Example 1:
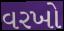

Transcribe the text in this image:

વરખો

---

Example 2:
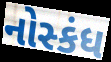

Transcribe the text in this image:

નોસ્કંધ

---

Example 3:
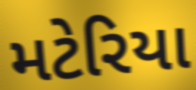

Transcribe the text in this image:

મટેરિયા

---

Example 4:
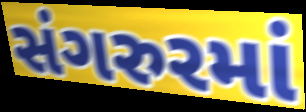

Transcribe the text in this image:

સંગરુરમાં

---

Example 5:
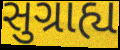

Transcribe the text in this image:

સુગ્રાહ્ય